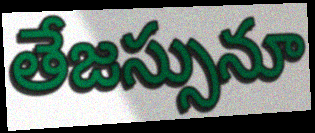
తేజస్సునూ